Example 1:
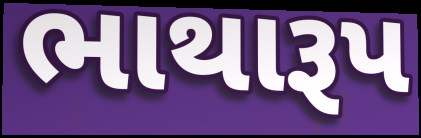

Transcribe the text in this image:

ભાથારૂપ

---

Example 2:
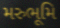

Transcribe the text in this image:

મરુભૂમિ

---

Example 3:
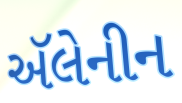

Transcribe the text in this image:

ઍલેનીન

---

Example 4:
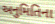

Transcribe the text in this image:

અનુમિતિના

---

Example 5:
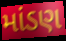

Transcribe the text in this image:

માંડણ